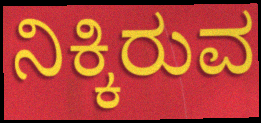
ನಿಕ್ಕಿರುವ